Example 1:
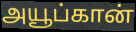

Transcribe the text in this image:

அயூப்கான்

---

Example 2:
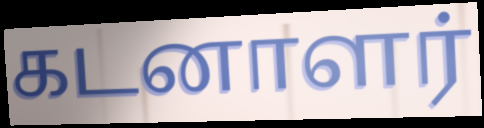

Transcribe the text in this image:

கடனாளர்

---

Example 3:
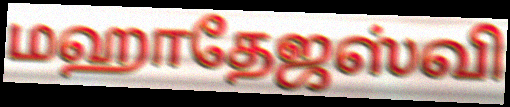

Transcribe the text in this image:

மஹாதேஜஸ்வி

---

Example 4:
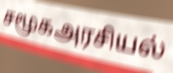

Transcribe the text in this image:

சமூகஅரசியல்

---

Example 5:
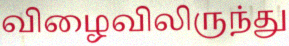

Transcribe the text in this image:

விழைவிலிருந்து